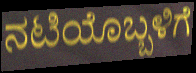
ನಟಿಯೊಬ್ಬಳಿಗೆ